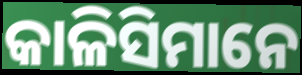
କାଳିସିମାନେ